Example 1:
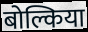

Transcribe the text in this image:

बोल्किया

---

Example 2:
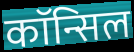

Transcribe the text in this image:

कॉन्सिल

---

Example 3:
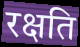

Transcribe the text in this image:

रक्षति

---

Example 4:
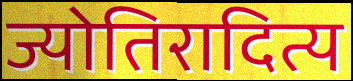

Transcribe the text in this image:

ज्योतिरादित्य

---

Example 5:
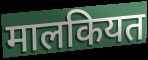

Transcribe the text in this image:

मालकियत